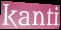
kanti